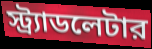
স্ট্র্যাডলেটার